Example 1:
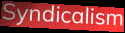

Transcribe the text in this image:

Syndicalism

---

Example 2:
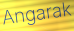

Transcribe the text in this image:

Angarak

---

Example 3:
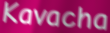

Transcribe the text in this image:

Kavacha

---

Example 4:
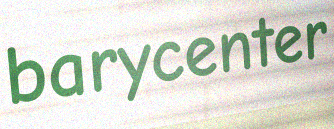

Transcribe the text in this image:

barycenter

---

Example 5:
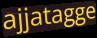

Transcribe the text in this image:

ajjatagge